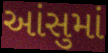
આંસુમાં